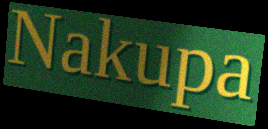
Nakupa